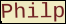
Philp